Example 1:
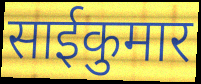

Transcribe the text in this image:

साईकुमार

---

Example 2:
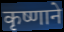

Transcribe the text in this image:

कृष्णाने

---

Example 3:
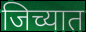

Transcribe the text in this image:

जिच्यात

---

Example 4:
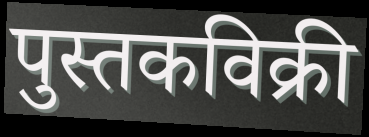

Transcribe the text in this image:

पुस्तकविक्री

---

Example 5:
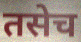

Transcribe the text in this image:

तसेच